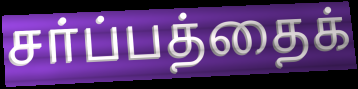
சர்ப்பத்தைக்